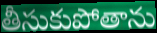
తీసుకుపోతాను